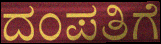
ದಂಪತಿಗೆ